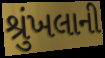
શ્રુંખલાની